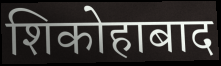
शिकोहाबाद